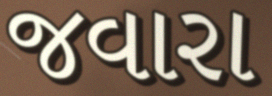
જવારા